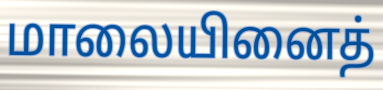
மாலையினைத்